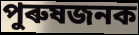
পুৰুষজনক